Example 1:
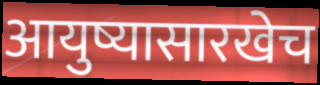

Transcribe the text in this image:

आयुष्यासारखेच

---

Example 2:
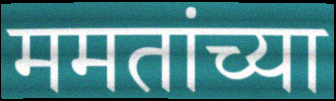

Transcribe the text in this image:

ममतांच्या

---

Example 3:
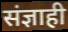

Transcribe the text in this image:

संज्ञाही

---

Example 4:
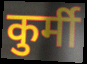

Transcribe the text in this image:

कुर्मी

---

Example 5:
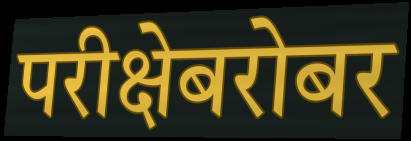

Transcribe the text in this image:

परीक्षेबरोबर